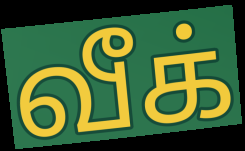
வீக்